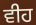
ਵੀਹ